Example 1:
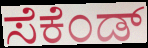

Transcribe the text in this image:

ಸೆಕೆಂಡ್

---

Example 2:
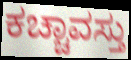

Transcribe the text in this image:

ಕಚ್ಚಾವಸ್ತು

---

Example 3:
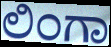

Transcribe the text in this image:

ಲಿಂಗಾ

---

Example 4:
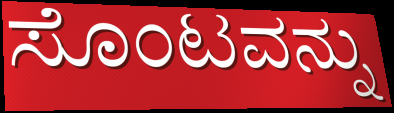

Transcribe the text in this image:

ಸೊಂಟವನ್ನು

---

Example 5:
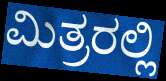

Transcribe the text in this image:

ಮಿತ್ರರಲ್ಲಿ